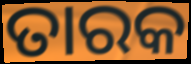
ତାରକ